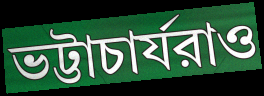
ভট্টাচার্যরাও